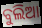
ବୁଲିଆ